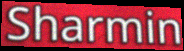
Sharmin